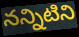
నన్నిటిని